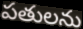
పతులను